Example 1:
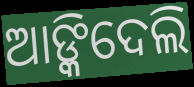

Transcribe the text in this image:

ଆଙ୍କିଦେଲି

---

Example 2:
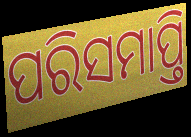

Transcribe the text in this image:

ପରିସମାପ୍ତି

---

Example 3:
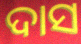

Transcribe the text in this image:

ଦାସ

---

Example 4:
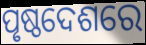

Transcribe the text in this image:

ପୃଷ୍ଠଦେଶରେ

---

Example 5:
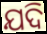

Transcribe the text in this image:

ଯଦି